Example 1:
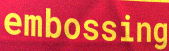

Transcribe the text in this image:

embossing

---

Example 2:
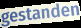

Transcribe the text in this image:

gestanden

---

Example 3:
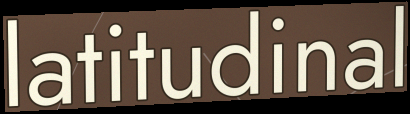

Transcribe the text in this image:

latitudinal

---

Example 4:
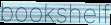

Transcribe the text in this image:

bookshelf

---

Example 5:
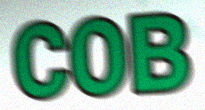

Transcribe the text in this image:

COB